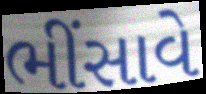
ભીંસાવે